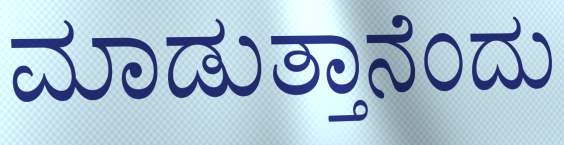
ಮಾಡುತ್ತಾನೆಂದು